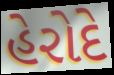
હેરોદે